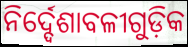
ନିର୍ଦ୍ଦେଶାବଳୀଗୁଡ଼ିକ